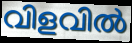
വിളവിൽ